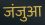
जंजुआ